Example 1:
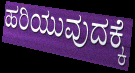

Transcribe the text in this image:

ಹರಿಯುವುದಕ್ಕೆ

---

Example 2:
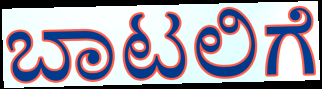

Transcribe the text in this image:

ಬಾಟಲಿಗೆ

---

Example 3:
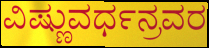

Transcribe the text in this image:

ವಿಷ್ಣುವರ್ಧನ್ರವರ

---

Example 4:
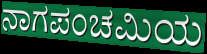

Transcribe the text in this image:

ನಾಗಪಂಚಮಿಯ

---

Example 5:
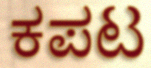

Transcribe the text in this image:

ಕಪಟ